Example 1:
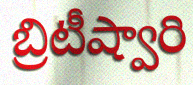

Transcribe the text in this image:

బ్రిటీష్వారి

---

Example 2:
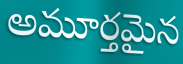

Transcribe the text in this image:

అమూర్తమైన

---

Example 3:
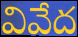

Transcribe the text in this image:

వివేద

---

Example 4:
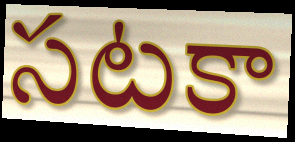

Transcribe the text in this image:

సటకా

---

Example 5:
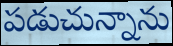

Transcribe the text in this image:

పడుచున్నాను